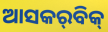
ଆସକର୍‌ବିକ୍